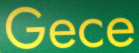
Gece